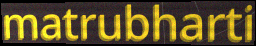
matrubharti